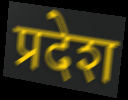
प्रदेश